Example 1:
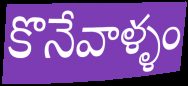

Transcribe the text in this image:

కొనేవాళ్ళం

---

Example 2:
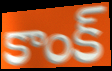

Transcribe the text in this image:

కాంక్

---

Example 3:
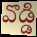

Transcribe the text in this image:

వొడ్డి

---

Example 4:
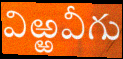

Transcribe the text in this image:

విఱ్ఱవీగు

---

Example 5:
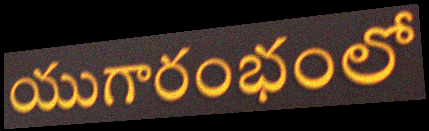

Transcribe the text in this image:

యుగారంభంలో